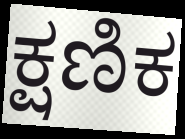
ಕ್ಷಣಿಕ